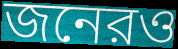
জনেরও